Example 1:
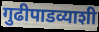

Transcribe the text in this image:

गुढीपाडव्याशी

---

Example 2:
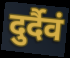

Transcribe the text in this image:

दुर्दैवं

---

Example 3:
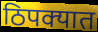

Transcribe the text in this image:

ठिपक्यात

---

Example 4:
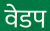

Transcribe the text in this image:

वेडप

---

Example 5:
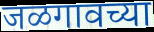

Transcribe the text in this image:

जळगावच्या